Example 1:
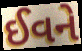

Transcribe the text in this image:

ઈવને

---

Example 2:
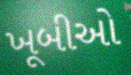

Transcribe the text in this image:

ખૂબીઓ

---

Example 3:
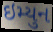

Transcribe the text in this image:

ઇમ્યુન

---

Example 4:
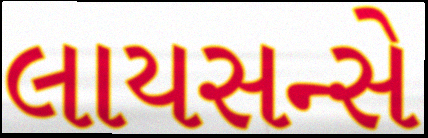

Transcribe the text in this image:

લાયસન્સે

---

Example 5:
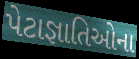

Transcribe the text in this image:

પેટાજ્ઞાતિઓના